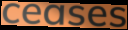
ceases